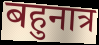
बहुनात्र